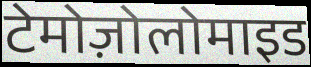
टेमोज़ोलोमाइड